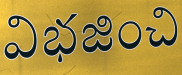
విభజించి